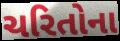
ચરિતોના